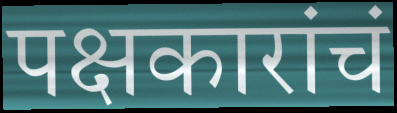
पक्षकारांचं